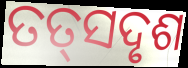
ତତ୍‌ସଦୃଶ